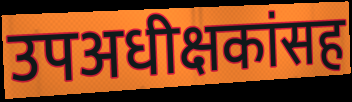
उपअधीक्षकांसह